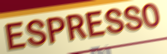
ESPRESSO